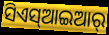
ସିଏସ୍ଆଇଆର୍